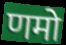
णमो